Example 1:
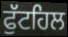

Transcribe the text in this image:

ਫੁੱਟਹਿਲ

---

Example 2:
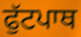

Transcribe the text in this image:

ਫੁੱਟਪਾਥ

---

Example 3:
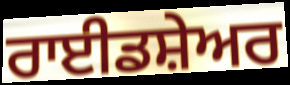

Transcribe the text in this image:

ਰਾਈਡਸ਼ੇਅਰ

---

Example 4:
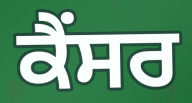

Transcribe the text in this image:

ਕੈੰਸਰ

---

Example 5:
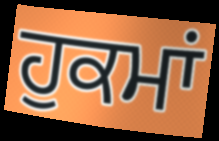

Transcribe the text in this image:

ਹੁਕਮਾਂ